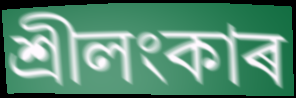
শ্ৰীলংকাৰ